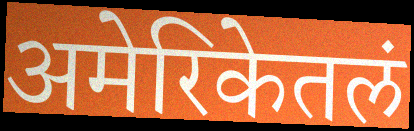
अमेरिकेतलं